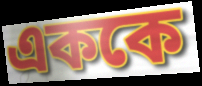
এককে